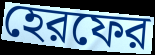
হেরফের